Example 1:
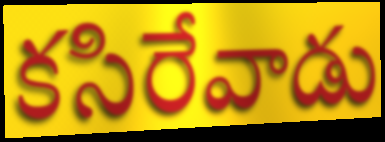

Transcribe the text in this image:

కసిరేవాడు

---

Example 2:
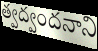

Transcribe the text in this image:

త్వద్వందనాని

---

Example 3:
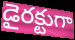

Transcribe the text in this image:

డైరక్టుగా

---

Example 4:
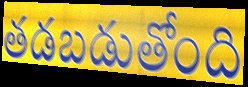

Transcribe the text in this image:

తడబడుతోంది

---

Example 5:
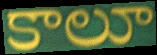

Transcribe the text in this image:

కాలూ